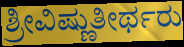
ಶ್ರೀವಿಷ್ಣುತೀರ್ಥರು